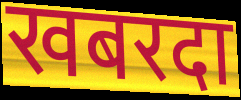
खबरदा